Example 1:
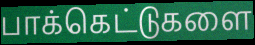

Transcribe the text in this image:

பாக்கெட்டுகளை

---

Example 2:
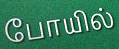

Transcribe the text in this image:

போயில்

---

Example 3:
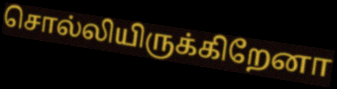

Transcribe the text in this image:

சொல்லியிருக்கிறேனா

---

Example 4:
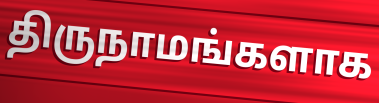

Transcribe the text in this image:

திருநாமங்களாக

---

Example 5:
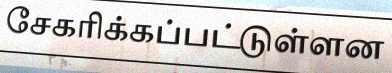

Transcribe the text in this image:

சேகரிக்கப்பட்டுள்ளன